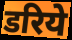
डरिये